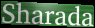
Sharada